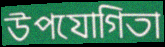
উপযোগিতা